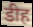
डीह